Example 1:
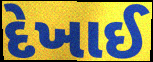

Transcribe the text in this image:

દેખાઈ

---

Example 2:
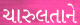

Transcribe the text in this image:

ચારુલતાને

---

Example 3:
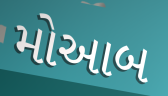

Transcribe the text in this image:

મોઆબ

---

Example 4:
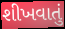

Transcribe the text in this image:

શીખવાતું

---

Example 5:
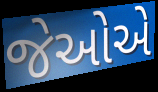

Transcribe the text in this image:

જેઓએ